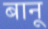
बानू